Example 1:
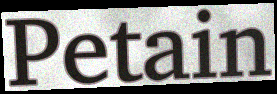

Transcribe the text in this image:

Petain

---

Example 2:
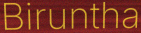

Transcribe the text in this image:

Biruntha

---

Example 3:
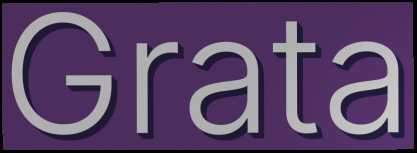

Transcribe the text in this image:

Grata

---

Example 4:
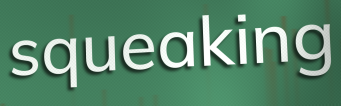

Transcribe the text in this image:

squeaking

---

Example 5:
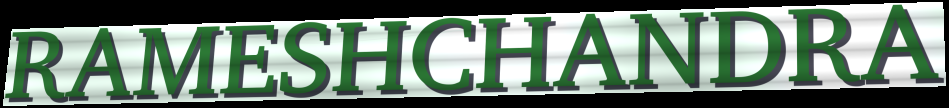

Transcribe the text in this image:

RAMESHCHANDRA